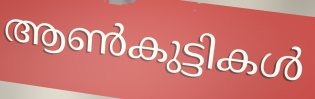
ആൺകുട്ടികൾ